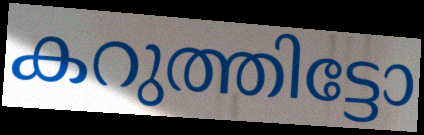
കറുത്തിട്ടോ